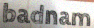
badnam